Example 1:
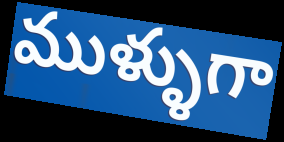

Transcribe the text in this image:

ముళ్ళుగా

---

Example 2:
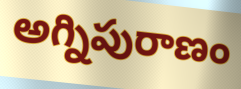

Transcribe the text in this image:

అగ్నిపురాణం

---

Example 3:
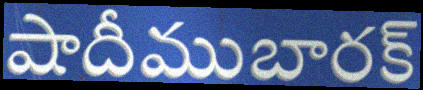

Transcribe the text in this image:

షాదీముబారక్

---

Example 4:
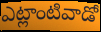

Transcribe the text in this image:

ఎట్లాంటివాడో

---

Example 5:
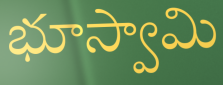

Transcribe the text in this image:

భూస్వామి